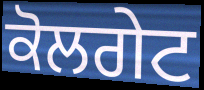
ਕੋਲਗੇਟ